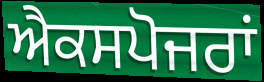
ਐਕਸਪੋਜਰਾਂ